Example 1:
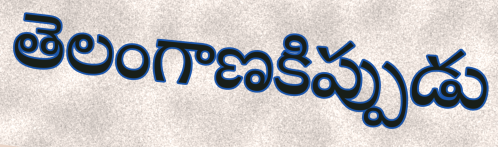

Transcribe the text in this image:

తెలంగాణకిప్పుడు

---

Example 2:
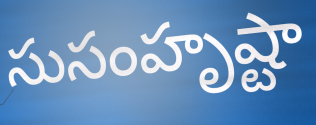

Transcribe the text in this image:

సుసంహృష్టా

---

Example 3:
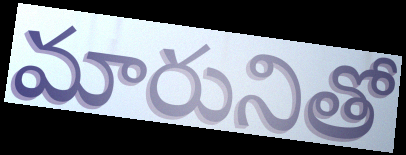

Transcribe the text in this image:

మారునితో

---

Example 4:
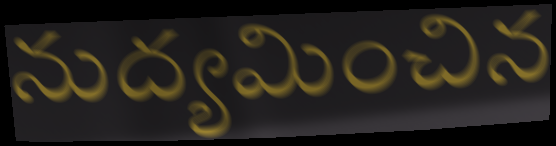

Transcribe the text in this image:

నుద్యమించిన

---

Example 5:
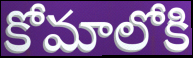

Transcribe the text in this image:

కోమాలోకి